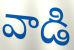
వాడి